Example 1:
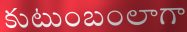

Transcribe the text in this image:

కుటుంబంలాగా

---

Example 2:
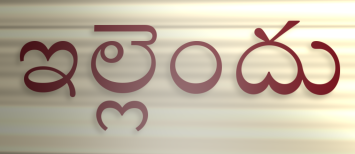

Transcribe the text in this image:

ఇల్లెందు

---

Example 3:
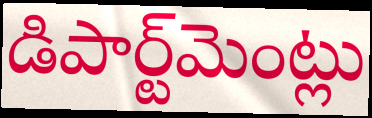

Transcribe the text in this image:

డిపార్ట్‌మెంట్లు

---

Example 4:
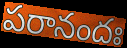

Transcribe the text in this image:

పరానందః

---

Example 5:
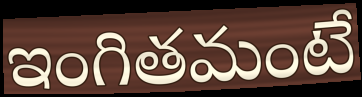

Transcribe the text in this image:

ఇంగితమంటే